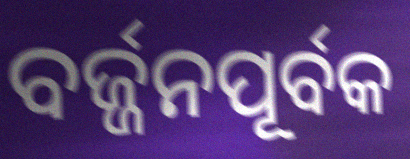
ବର୍ଜ୍ଜନପୂର୍ବକ